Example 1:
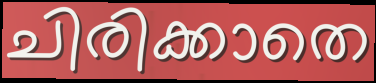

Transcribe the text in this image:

ചിരിക്കാതെ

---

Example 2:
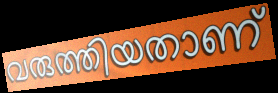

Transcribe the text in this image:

വരുത്തിയതാണ്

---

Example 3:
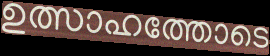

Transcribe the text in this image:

ഉത്സാഹത്തോടെ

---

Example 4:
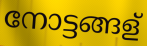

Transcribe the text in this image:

നോട്ടങ്ങള്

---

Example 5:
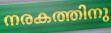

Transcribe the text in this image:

നരകത്തിനു